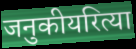
जनुकीयरित्या